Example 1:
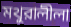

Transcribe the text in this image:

মথুরালীলা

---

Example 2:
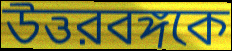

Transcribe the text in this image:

উত্তরবঙ্গকে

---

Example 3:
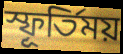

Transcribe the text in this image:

স্ফূর্তিময়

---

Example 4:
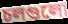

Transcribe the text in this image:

চলগুলো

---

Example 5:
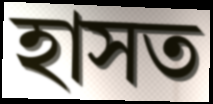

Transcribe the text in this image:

হাসত